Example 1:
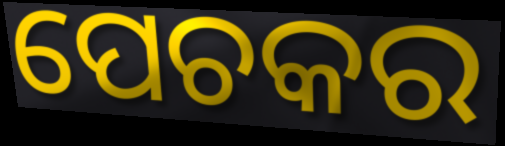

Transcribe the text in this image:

ପେଚକର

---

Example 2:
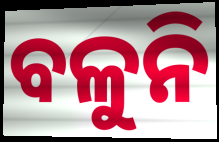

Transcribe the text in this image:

ବଳୁନି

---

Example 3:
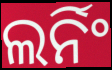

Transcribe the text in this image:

ଲର୍ନିଂ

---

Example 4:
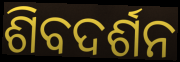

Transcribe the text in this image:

ଶିବଦର୍ଶନ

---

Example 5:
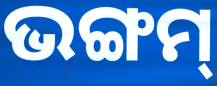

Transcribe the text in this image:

ଭଙ୍ଗମ୍